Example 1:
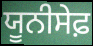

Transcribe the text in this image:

ਯੂਨੀਸੇਫ਼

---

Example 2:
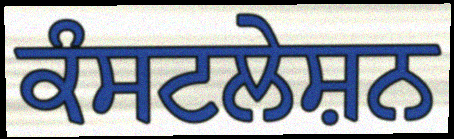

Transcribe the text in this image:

ਕੰਸਟਲੇਸ਼ਨ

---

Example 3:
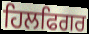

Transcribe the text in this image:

ਹਿਲਫਿਗਰ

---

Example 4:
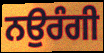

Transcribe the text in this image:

ਨਉਰੰਗੀ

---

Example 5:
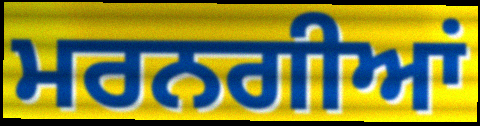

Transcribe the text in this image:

ਮਰਨਗੀਆਂ